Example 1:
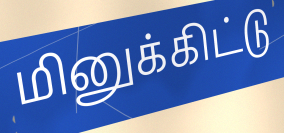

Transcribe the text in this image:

மினுக்கிட்டு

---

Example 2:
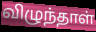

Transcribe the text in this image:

விழுந்தாள்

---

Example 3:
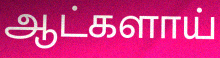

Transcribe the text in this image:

ஆட்களாய்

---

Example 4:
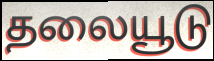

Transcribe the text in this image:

தலையூடு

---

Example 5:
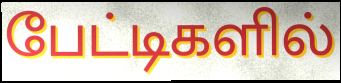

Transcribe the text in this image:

பேட்டிகளில்